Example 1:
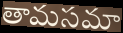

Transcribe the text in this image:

తామసమా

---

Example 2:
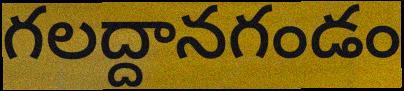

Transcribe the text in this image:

గలద్దానగండం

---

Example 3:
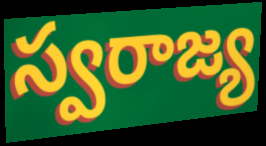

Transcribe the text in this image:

స్వరాజ్య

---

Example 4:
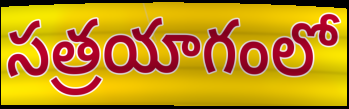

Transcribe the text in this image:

సత్రయాగంలో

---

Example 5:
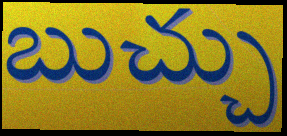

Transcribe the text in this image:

బుచ్చు